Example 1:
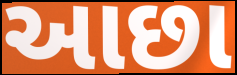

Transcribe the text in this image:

આછા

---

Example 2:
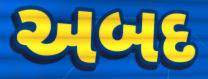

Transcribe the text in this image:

અબદ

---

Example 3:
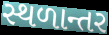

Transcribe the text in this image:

સ્થળાન્તર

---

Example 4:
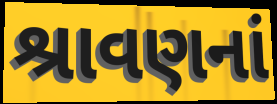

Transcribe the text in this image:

શ્રાવણનાં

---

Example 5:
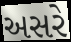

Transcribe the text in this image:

અસરે